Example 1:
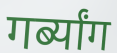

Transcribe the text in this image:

गर्ब्यांग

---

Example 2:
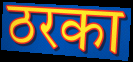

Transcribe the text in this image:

ठरका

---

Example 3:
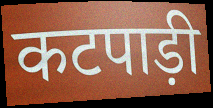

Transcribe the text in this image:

कटपाड़ी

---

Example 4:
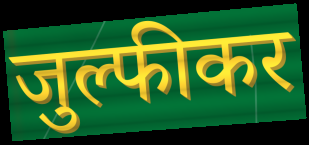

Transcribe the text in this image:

जुल्फीकर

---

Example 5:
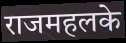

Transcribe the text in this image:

राजमहलके